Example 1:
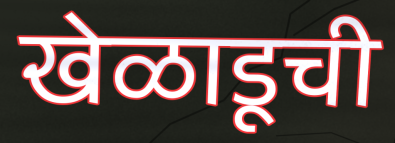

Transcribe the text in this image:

खेळाडूची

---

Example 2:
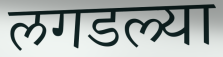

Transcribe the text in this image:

लगडल्या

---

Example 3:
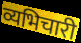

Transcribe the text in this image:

व्यभिचारी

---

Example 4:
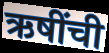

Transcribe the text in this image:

ऋषींची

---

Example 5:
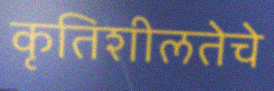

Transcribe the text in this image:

कृतिशीलतेचे